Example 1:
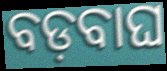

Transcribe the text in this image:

ବଡ଼ବାଘ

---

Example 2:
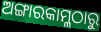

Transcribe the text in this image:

ଅଙ୍ଗାରକାମ୍ଳଠାରୁ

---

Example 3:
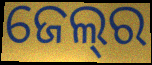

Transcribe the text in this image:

ଜେଲ୍‍ର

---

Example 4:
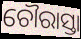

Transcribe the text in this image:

ଚୌରାସ୍ତା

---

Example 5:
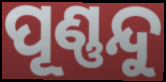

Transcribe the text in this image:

ପୂଣ୍ଣନ୍ଦୁ